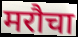
मरौचा